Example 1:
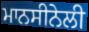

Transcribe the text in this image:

ਮਾਨਸੀਨੇਲੀ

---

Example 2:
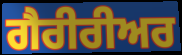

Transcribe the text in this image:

ਗੈਰੀਰੀਅਰ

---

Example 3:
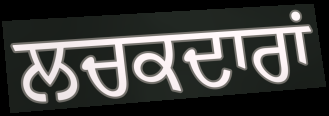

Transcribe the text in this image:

ਲਚਕਦਾਰਾਂ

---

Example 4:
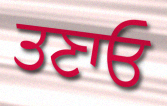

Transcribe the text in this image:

ਤਣਾਓ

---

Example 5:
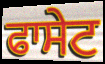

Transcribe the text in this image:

ਫਾਸੇਟ